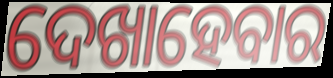
ଦେଖାହେବାର